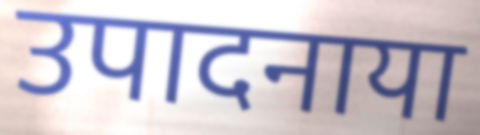
उपादनाया